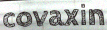
covaxin